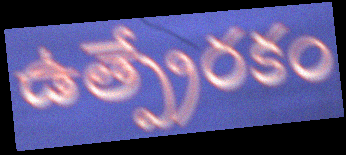
ఉత్ప్రేరకం